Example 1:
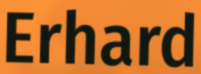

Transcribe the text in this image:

Erhard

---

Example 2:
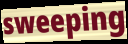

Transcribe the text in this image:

sweeping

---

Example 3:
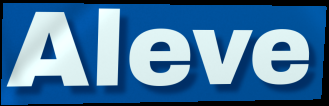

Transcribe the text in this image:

Aleve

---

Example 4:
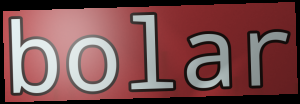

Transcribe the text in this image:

bolar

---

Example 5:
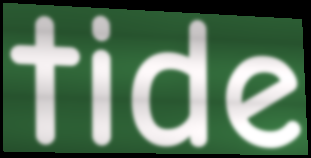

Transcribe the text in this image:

tide